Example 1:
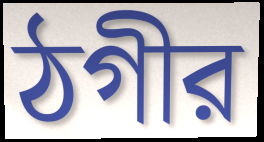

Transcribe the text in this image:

ঠগীর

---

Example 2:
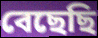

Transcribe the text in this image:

বেছেছি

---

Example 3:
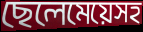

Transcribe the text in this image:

ছেলেমেয়েসহ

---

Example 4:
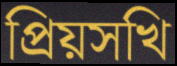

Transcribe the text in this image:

প্রিয়সখি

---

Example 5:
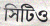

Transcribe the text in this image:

সিটিও